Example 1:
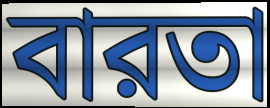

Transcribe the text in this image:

বারতা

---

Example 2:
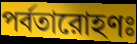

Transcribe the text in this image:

পর্বতারোহণঃ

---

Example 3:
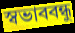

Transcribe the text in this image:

স্বভাববন্ধু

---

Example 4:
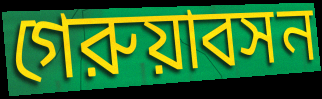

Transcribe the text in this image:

গেরুয়াবসন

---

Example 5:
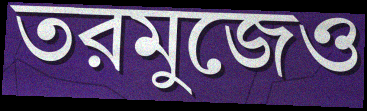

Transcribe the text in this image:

তরমুজেও